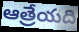
ఆత్రేయది